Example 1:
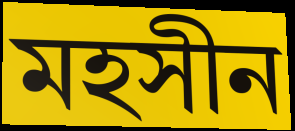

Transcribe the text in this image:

মহসীন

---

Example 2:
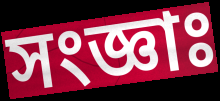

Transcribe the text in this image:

সংজ্ঞাঃ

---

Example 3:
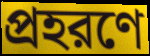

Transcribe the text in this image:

প্রহরণে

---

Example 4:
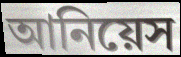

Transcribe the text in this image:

আনিয়েস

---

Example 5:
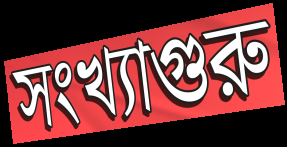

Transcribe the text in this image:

সংখ্যাগুরু